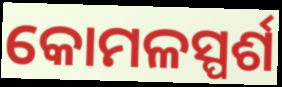
କୋମଳସ୍ପର୍ଶ